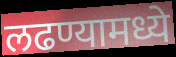
लढण्यामध्ये